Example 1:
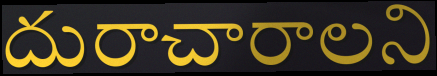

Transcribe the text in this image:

దురాచారాలని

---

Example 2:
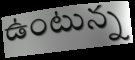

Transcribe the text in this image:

ఉంటున్న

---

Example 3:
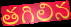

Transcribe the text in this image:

తగిలిన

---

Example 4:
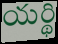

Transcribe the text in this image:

యర్థి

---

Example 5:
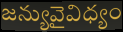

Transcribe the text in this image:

జన్యువైవిధ్యం